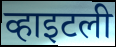
व्हाइटली